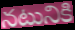
నటునికి